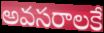
అవసరాలకే